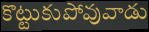
కొట్టుకుపోవువాడు